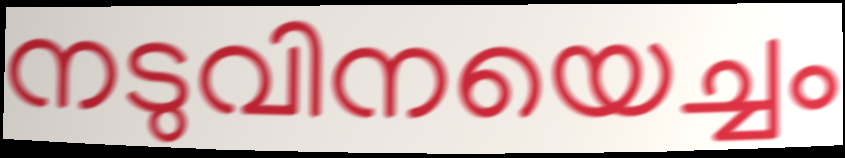
നടുവിനയെച്ചം